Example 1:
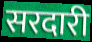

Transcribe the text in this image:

सरदारी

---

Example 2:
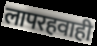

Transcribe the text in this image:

लापरहवाही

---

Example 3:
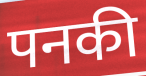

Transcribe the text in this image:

पनकी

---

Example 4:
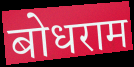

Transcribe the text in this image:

बोधराम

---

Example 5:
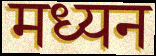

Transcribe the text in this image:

मध्यन